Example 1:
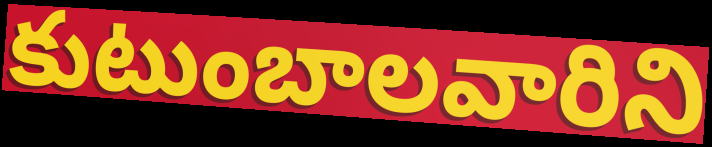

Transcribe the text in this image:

కుటుంబాలవారిని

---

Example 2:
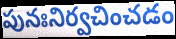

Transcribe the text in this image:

పునఃనిర్వచించడం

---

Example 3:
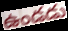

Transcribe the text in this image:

ఉండడు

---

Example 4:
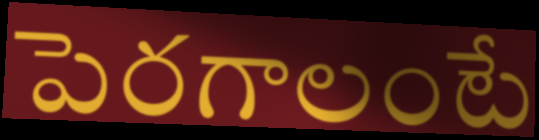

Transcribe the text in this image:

పెరగాలంటే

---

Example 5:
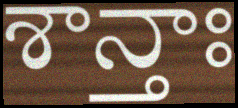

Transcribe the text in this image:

శాన్తాః